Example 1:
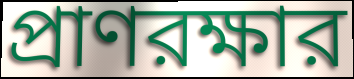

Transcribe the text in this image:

প্রাণরক্ষার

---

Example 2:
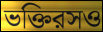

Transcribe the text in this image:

ভক্তিরসও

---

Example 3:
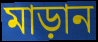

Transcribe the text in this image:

মাড়ান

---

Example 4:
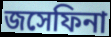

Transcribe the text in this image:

জসেফিনা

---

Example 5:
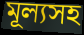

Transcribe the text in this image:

মূল্যসহ